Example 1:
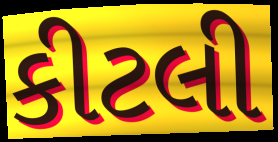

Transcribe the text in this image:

કીટલી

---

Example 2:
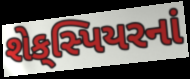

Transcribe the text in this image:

શેક્‌સ્પિયરનાં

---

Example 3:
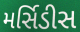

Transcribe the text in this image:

મર્સિડીસ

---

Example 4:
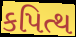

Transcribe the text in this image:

કપિત્થ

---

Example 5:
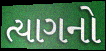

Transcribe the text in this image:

ત્યાગનો